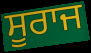
ਸੂਰਾਜ